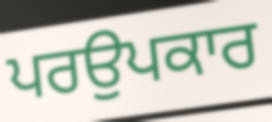
ਪਰਉਪਕਾਰ